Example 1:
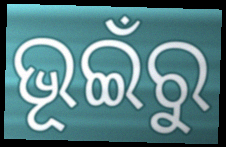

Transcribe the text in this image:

ଭୂଇଁରୁ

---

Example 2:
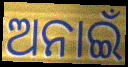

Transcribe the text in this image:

ଅନାଇଁ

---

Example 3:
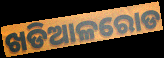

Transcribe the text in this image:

ଖଡିଆଳରୋଡ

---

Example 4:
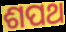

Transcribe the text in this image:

ଶପଥ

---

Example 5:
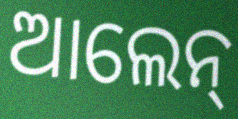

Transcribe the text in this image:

ଆଲେନ୍